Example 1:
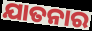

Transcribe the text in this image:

ଯାତନାର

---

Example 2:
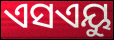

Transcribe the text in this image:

ଏସଏୟୁ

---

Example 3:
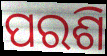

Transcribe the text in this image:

ପରଶି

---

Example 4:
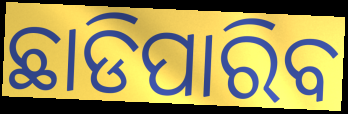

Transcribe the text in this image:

ଛାଡିପାରିବ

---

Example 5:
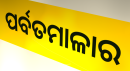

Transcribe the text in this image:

ପର୍ବତମାଳାର